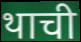
थाची